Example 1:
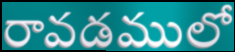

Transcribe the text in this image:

రావడములో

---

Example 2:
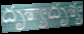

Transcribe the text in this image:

దృశ్యాదృశ్య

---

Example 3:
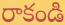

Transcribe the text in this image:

రాకండి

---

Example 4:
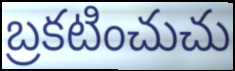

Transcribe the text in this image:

బ్రకటించుచు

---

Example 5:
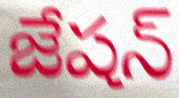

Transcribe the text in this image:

జేషన్